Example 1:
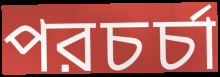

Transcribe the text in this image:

পরচর্চা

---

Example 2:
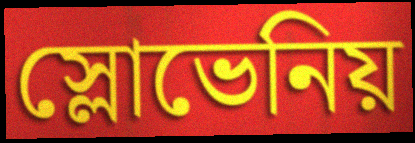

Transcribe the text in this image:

স্লোভেনিয়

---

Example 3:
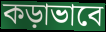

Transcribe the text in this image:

কড়াভাবে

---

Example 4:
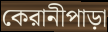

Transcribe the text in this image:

কেরানীপাড়া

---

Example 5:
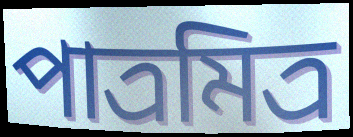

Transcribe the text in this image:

পাত্রমিত্র